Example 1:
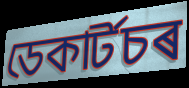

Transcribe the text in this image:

ডেকাৰ্টচৰ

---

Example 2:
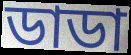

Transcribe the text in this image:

ডাডা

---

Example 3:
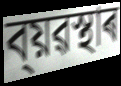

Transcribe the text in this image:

ব্য়ৱস্থাৰ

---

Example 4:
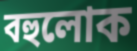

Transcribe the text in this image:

বহুলোক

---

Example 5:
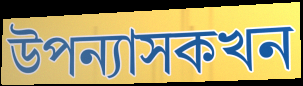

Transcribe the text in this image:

উপন্যাসকখন